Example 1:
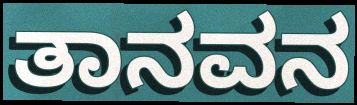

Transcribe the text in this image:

ತಾನವನ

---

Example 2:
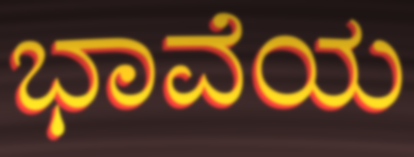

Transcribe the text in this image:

ಭಾವೆಯ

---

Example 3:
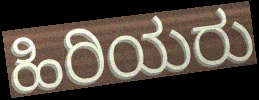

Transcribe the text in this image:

ಹಿರಿಯರು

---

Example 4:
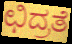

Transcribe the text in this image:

ಛಿದ್ರತೆ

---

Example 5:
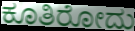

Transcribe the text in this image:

ಕೂತಿರೋದು